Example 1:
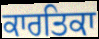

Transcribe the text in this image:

ਕਾਰਤਿਕਾ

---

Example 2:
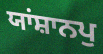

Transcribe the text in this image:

ਯਾਂਸ਼ਾਨਪੁ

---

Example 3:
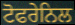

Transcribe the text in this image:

ਟੋਫਰੇਨਿਲ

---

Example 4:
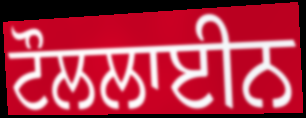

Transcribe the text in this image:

ਟੌਲਲਾਈਨ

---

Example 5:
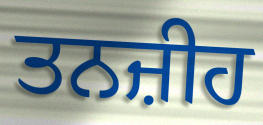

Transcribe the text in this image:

ਤਨਜ਼ੀਹ